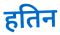
हतिन